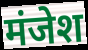
मंजेश